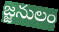
జ్జనులం